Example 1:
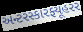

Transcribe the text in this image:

અન્ટરસ્કારફ્યૂહરર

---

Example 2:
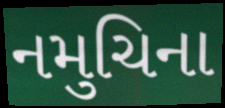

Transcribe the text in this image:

નમુચિના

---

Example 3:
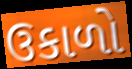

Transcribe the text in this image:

ઉકાળો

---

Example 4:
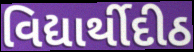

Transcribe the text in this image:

વિદ્યાર્થીદીઠ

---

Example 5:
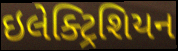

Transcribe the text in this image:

ઇલેક્ટ્રિશિયન